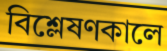
বিশ্লেষণকালে